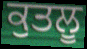
ਕੁਤਲੂ